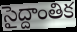
సైద్దాంతిక